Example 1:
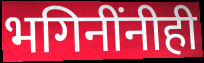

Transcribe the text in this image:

भगिनींनीही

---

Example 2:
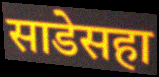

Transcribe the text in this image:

साडेसहा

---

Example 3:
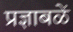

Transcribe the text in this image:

प्रज्ञाबळें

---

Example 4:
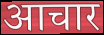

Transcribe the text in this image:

आचार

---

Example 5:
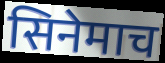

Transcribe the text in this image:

सिनेमाच